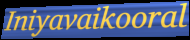
Iniyavaikooral